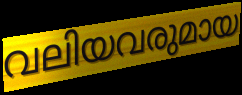
വലിയവരുമായ